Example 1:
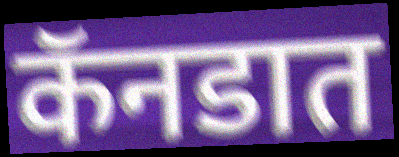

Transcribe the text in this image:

कॅनडात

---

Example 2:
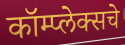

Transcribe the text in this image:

कॉम्प्लेक्सचे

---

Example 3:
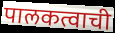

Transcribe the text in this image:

पालकत्वाची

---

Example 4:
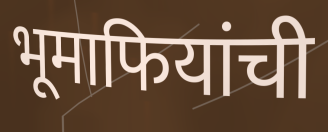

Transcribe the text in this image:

भूमाफियांची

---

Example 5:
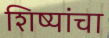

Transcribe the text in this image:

शिष्यांचा